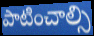
పాటించాల్సి